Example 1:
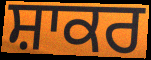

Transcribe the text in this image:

ਸ਼ਾਕਰ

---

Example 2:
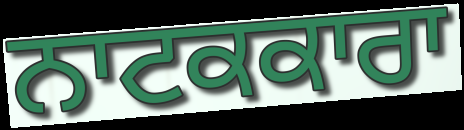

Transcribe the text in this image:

ਨਾਟਕਕਾਰਾ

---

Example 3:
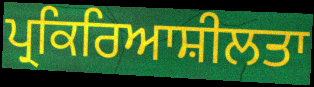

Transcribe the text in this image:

ਪ੍ਰਕਿਰਿਆਸ਼ੀਲਤਾ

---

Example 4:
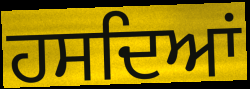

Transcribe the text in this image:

ਹਸਦਿਆਂ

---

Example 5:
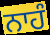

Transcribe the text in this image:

ਨਾਹੰ